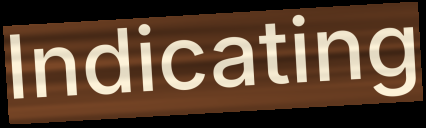
Indicating